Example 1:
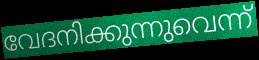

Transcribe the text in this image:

വേദനിക്കുന്നുവെന്ന്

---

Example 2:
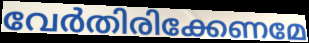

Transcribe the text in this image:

വേർതിരിക്കേണമേ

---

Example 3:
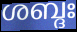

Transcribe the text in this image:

ശബ്ദഃ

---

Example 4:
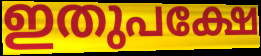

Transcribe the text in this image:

ഇതുപക്ഷേ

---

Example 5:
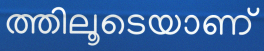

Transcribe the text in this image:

ത്തിലൂടെയാണ്